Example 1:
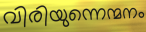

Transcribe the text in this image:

വിരിയുന്നെന്മനം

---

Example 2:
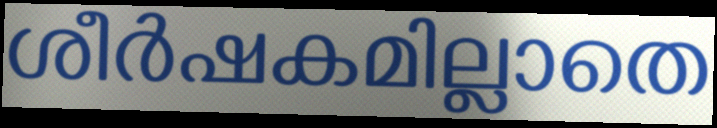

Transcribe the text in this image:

ശീർഷകമില്ലാതെ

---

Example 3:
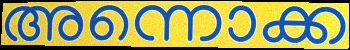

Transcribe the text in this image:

അന്നൊക്ക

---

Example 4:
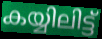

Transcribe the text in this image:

കയ്യിലിട്ട്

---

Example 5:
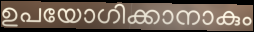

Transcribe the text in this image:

ഉപയോഗിക്കാനാകും